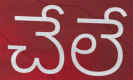
చేలే